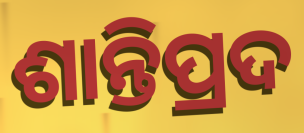
ଶାନ୍ତିପ୍ରଦ